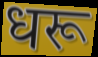
धरू